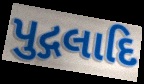
પુદ્ગલાદિ